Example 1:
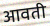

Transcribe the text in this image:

आवती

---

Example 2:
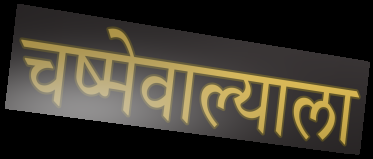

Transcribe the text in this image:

चष्मेवाल्याला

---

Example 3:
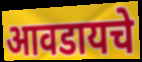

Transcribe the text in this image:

आवडायचे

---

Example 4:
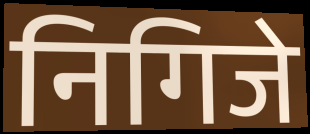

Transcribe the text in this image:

निगिजे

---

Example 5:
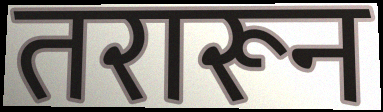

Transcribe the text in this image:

तरारून